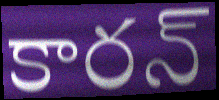
కారన్